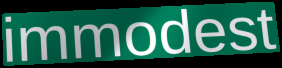
immodest